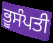
ਭੂਸੰਪਤੀ